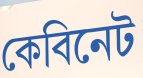
কেবিনেট